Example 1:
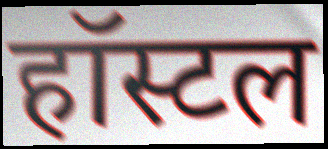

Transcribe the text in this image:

हॉस्टल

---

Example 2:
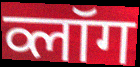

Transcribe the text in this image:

व्लॉग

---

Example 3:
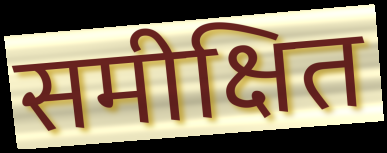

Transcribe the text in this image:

समीक्षित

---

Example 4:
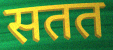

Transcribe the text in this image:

सतत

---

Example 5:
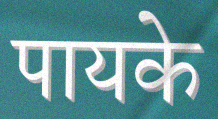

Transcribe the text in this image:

पायके